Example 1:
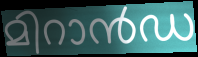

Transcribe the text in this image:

മിറാൻഡ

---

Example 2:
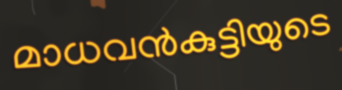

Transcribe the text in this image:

മാധവൻകുട്ടിയുടെ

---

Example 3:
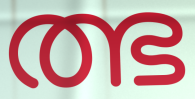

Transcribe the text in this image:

ത്ഭ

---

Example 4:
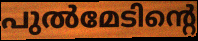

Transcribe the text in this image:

പുൽമേടിന്റെ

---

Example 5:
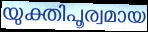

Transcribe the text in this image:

യുക്തിപൂര്വമായ